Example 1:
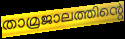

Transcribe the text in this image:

താമ്രജാലത്തിന്റെ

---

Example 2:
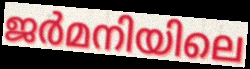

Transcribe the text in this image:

ജർമനിയിലെ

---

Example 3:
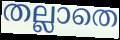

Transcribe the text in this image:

തല്ലാതെ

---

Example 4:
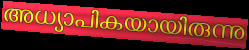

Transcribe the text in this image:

അധ്യാപികയായിരുന്നു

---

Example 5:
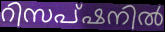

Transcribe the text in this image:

റിസപ്ഷനിൽ